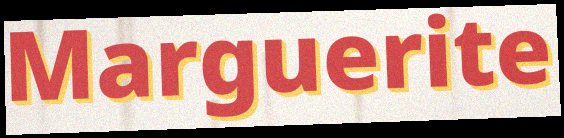
Marguerite